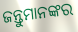
ଜନ୍ତୁମାନଙ୍କର